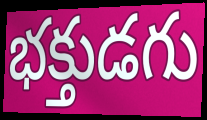
భక్తుడగు